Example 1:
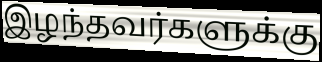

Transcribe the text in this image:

இழந்தவர்களுக்கு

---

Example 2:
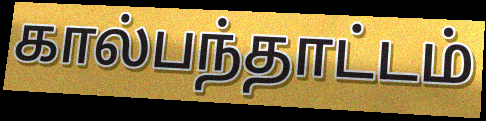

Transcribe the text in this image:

கால்பந்தாட்டம்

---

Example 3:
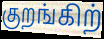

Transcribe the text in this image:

குறங்கிற்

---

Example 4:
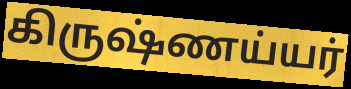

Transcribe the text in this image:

கிருஷ்ணய்யர்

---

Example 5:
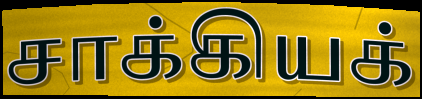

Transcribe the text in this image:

சாக்கியக்